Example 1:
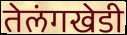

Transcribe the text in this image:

तेलंगखेडी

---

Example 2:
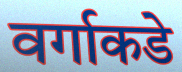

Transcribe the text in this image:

वर्गाकडे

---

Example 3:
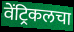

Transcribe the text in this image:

वेंट्रिकलचा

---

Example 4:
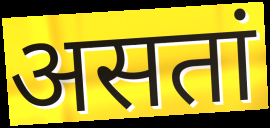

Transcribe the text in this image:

असतां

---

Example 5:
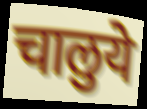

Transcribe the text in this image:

चालुये